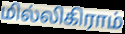
மில்லிகிராம்